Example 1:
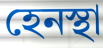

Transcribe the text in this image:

হেনস্থা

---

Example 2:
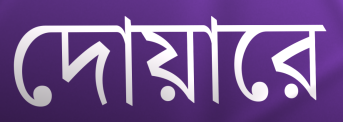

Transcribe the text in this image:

দোয়ারে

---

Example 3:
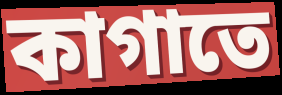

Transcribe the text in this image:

কাগাতে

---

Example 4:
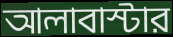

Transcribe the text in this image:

আলাবাস্টার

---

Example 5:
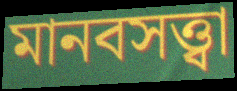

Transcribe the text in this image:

মানবসত্ত্বা